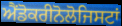
ਐਂਡੋਕਰੀਨੋਲੋਜਿਸਟਾਂ